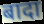
बादा